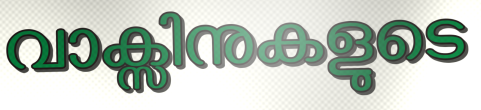
വാക്സിനുകളുടെ